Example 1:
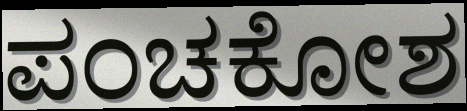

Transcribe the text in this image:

ಪಂಚಕೋಶ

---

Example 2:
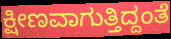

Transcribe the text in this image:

ಕ್ಷೀಣವಾಗುತ್ತಿದ್ದಂತೆ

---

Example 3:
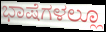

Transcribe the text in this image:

ಭಾಷೆಗಳಲ್ಲೂ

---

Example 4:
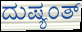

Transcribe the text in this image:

ದುಷ್ಯಂತ್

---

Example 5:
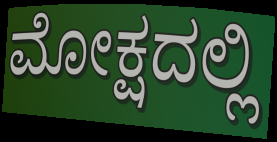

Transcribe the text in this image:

ಮೋಕ್ಷದಲ್ಲಿ